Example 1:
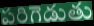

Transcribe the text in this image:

పరిగెడుతు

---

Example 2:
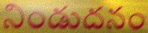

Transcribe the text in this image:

నిండుదనం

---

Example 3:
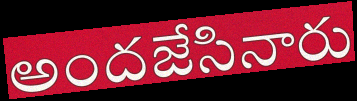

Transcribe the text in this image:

అందజేసినారు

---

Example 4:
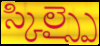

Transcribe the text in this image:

స్కిల్స్పై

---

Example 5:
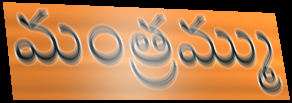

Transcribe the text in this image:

మంత్రమ్ము